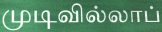
முடிவில்லாப்